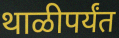
थाळीपर्यंत